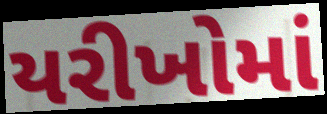
યરીખોમાં